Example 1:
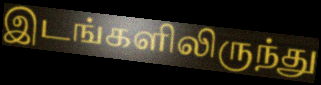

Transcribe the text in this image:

இடங்களிலிருந்து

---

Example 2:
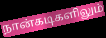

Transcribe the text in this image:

நான்கடிகளிலும்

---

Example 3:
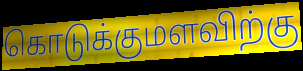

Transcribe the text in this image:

கொடுக்குமளவிற்கு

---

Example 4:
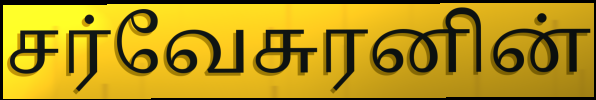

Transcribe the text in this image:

சர்வேசுரனின்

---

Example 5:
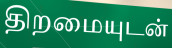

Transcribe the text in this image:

திறமையுடன்